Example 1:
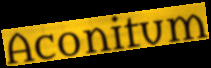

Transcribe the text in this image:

Aconitum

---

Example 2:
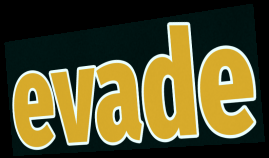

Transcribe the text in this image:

evade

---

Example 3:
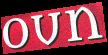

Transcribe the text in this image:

oun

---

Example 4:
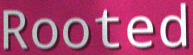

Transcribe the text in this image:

Rooted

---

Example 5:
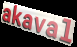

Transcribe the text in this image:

akaval